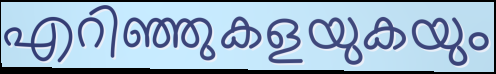
എറിഞ്ഞുകളയുകയും